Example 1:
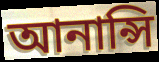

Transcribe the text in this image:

আনান্সি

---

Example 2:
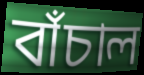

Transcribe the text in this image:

বাঁচাল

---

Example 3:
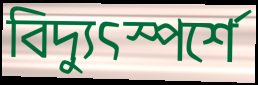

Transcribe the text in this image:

বিদ্যুৎস্পর্শে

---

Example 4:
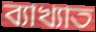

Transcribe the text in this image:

ব্যাখ্যাত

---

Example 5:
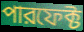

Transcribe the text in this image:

পারফেক্ট